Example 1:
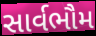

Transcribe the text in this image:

સાર્વભૌમ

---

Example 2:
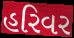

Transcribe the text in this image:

હરિવર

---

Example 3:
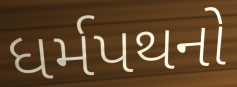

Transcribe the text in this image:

ધર્મપથનો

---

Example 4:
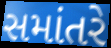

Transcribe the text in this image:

સમાંતરે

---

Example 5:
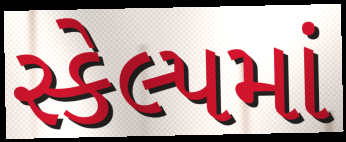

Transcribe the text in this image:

સ્કેલ્પમાં